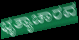
ಭೃತ್ಯಾಚಾರವ